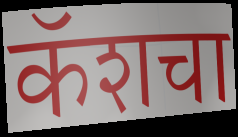
कॅशचा